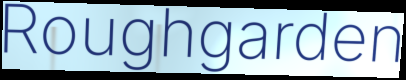
Roughgarden